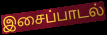
இசைப்பாடல்